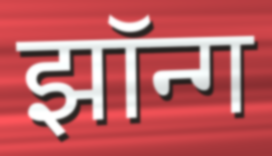
झॉन्ग